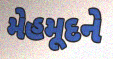
મેહમૂદને